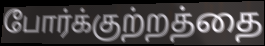
போர்க்குற்றத்தை